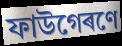
ফাউগেৰণে